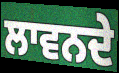
ਲਾਵਨਦੇ